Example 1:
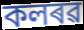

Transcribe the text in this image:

কলৰৱ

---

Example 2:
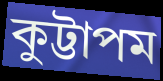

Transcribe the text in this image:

কুট্টাপম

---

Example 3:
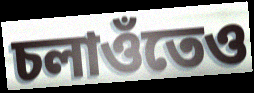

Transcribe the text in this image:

চলাওঁতেও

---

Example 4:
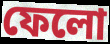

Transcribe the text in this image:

ফেলো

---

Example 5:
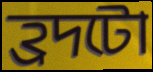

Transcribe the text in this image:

হ্ৰদটো